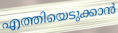
എത്തിയെടുക്കാൻ